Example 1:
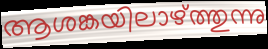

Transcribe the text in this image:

ആശങ്കയിലാഴ്ത്തുന്നു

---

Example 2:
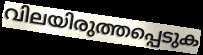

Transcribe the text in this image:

വിലയിരുത്തപ്പെടുക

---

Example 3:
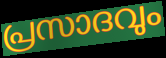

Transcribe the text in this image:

പ്രസാദവും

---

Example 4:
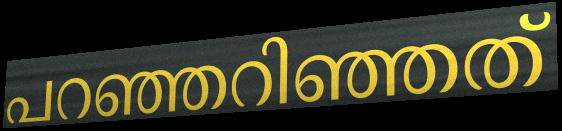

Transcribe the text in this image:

പറഞ്ഞറിഞ്ഞത്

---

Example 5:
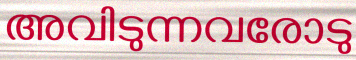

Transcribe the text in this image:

അവിടുന്നവരോടു